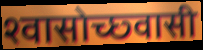
श्वासोच्छ्वासी